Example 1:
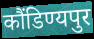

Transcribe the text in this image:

कौंडिण्यपुर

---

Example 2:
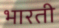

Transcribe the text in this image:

भारती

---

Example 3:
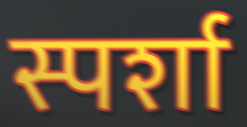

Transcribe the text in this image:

स्पर्शा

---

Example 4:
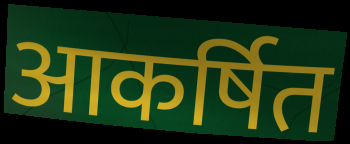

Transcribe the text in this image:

आकर्षित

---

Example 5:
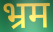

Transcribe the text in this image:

भ्रम